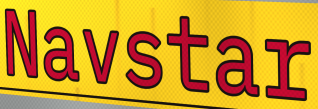
Navstar